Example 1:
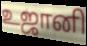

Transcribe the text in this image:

உஜானி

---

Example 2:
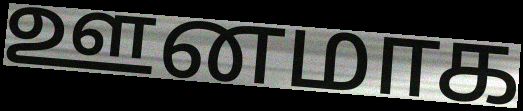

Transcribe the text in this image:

ஊனமாக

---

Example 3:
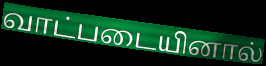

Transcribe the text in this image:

வாட்படையினால்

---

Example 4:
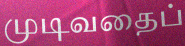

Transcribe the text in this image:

முடிவதைப்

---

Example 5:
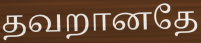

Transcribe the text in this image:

தவறானதே